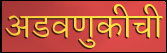
अडवणुकीची